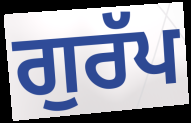
ਗੁਰੱਪ